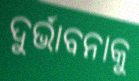
ଦୁର୍ଭାବନାକୁ